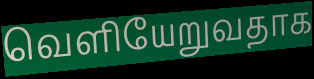
வெளியேறுவதாக